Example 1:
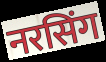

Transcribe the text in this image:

नरसिंग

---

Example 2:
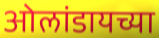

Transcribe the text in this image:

ओलांडायच्या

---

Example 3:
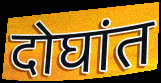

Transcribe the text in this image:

दोघांत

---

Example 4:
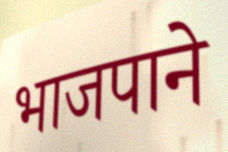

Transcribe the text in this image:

भाजपाने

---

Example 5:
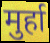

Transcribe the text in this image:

मुर्हा